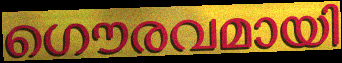
ഗൌരവമായി